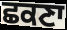
ਛਕਣਾ